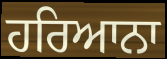
ਹਰਿਆਨਾ